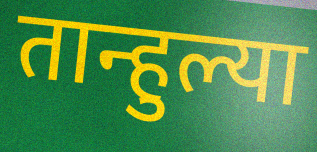
तान्हुल्या